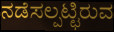
ನಡೆಸಲ್ಪಟ್ಟಿರುವ